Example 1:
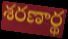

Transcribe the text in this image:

శరణార్థ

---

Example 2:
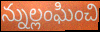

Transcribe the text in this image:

న్నుల్లంఘించి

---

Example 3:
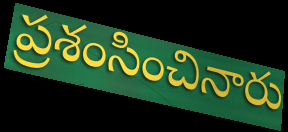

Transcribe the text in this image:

ప్రశంసించినారు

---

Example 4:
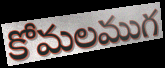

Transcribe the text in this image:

కోమలముగ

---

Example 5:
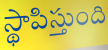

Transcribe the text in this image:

స్థాపిస్తుంది